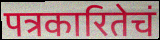
पत्रकारितेचं